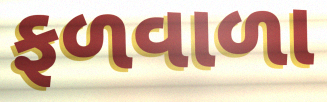
ફળવાળા